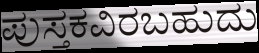
ಪುಸ್ತಕವಿರಬಹುದು